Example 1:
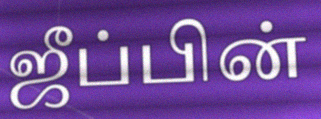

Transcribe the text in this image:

ஜீப்பின்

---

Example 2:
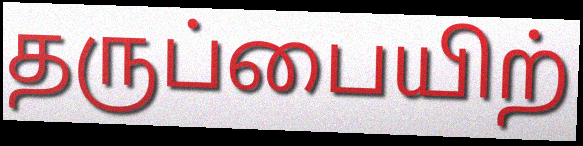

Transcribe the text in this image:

தருப்பையிற்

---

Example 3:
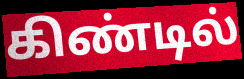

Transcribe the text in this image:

கிண்டில்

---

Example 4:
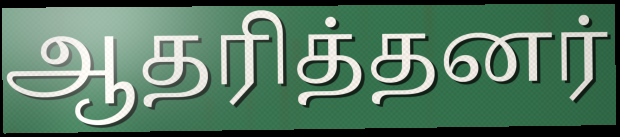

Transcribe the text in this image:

ஆதரித்தனர்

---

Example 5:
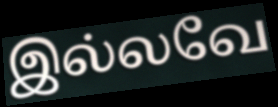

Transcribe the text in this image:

இல்லவே